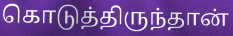
கொடுத்திருந்தான்